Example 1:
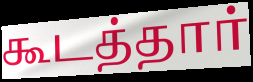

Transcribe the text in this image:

கூடத்தார்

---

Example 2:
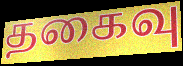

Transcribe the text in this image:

தகைவு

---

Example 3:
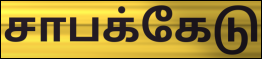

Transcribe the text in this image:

சாபக்கேடு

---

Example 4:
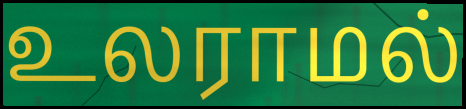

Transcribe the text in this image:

உலராமல்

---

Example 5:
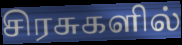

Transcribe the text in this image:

சிரசுகளில்